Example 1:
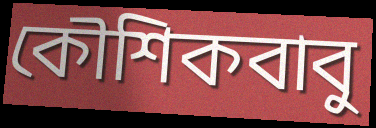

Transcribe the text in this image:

কৌশিকবাবু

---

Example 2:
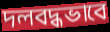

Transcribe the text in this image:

দলবদ্ধভাবে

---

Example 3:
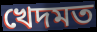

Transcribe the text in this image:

খেদমত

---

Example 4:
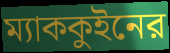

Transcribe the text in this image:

ম্যাককুইনের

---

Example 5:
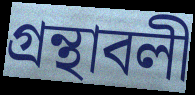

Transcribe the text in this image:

গ্রন্থাবলী